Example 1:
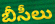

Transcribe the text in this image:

బీసీలు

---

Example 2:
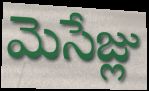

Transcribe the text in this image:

మెసేజ్లు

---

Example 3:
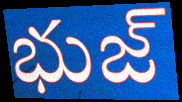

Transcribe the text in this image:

భుజ్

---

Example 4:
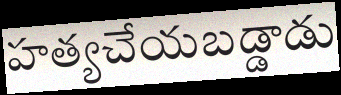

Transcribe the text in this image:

హత్యచేయబడ్డాడు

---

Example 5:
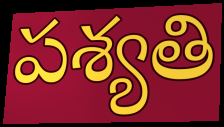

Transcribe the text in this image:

పశ్యతి